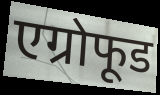
एग्रोफूड